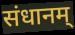
संधानम्